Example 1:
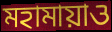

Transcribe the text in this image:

মহামায়াও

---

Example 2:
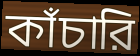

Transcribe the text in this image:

কাঁচারি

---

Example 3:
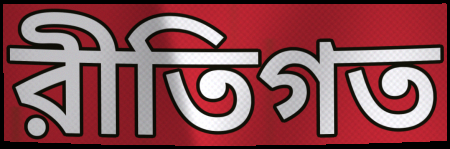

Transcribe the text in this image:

রীতিগত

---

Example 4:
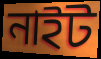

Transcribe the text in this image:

নাইট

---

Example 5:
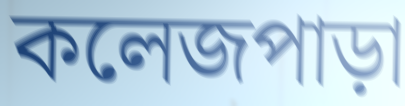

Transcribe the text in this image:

কলেজপাড়া